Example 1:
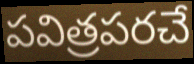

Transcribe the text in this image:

పవిత్రపరచే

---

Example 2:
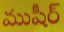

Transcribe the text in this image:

ముషీర్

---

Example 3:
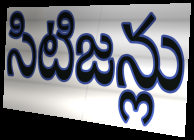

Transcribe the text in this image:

సిటిజన్లు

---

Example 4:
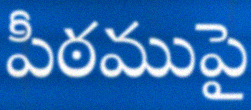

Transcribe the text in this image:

పీఠముపై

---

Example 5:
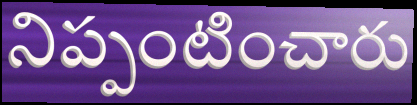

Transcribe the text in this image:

నిప్పంటించారు